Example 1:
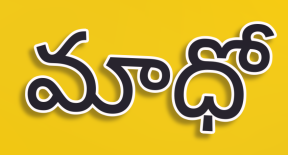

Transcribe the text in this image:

మాధో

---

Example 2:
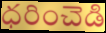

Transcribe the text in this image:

ధరించెడి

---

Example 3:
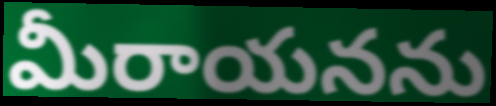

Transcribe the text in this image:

మీరాయనను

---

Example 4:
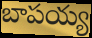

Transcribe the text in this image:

బాపయ్య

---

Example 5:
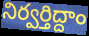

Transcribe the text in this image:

నిర్వర్తిద్దాం